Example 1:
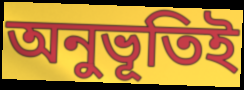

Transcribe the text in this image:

অনুভূতিই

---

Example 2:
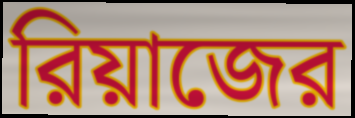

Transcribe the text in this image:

রিয়াজের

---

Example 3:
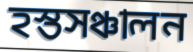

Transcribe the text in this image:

হস্তসঞ্চালন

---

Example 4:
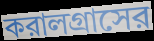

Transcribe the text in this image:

করালগ্রাসের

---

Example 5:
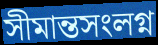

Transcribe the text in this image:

সীমান্তসংলগ্ন